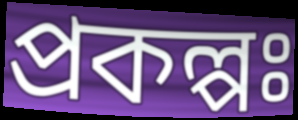
প্ৰকল্পঃ